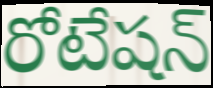
రోటేషన్